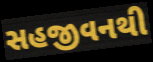
સહજીવનથી